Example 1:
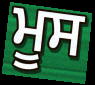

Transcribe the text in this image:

ਮੂਸ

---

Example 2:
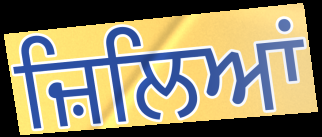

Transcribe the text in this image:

ਜ਼ਿਲਿਆਂ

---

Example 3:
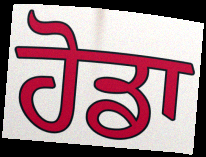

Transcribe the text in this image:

ਹੋਡਾ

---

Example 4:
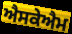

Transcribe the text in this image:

ਐਸਕੇਐਮ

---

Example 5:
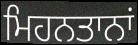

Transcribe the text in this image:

ਮਿਹਨਤਾਨਾਂ